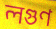
লগুণ